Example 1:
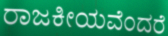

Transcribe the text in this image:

ರಾಜಕೀಯವೆಂದರೆ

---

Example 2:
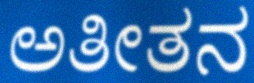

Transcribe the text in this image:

ಅತೀತನ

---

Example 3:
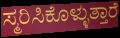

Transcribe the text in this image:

ಸ್ಮರಿಸಿಕೊಳ್ಳುತ್ತಾರೆ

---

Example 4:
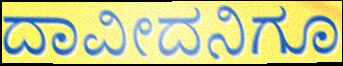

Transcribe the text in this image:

ದಾವೀದನಿಗೂ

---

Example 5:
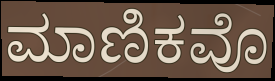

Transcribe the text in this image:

ಮಾಣಿಕವೊ